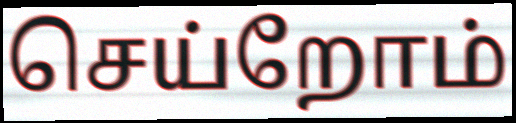
செய்றோம்